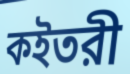
কইতরী